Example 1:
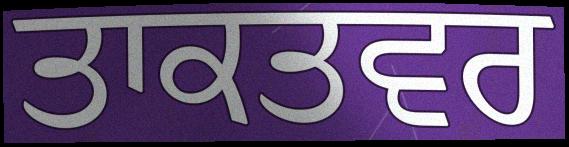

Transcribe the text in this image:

ਤਾਕਤਵਰ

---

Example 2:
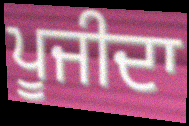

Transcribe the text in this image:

ਪੂਜੀਦਾ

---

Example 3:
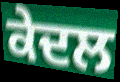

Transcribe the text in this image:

ਕੇਦਲ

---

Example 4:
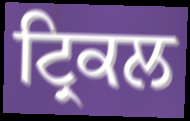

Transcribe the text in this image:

ਟ੍ਰਿਕਲ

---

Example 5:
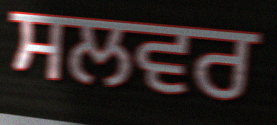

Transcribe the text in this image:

ਸਲਵਰ